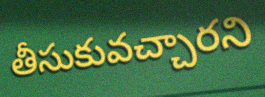
తీసుకువచ్చారని